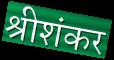
श्रीशंकर